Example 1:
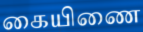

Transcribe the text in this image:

கையிணை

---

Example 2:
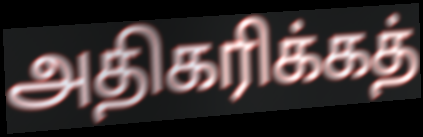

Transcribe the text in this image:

அதிகரிக்கத்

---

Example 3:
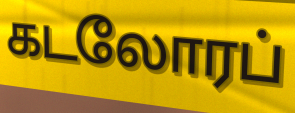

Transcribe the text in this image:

கடலோரப்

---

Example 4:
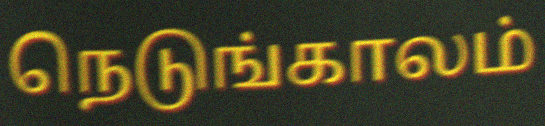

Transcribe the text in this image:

நெடுங்காலம்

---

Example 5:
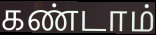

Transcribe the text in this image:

கண்டாம்